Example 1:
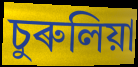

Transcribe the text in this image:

চুৰুলিয়া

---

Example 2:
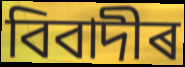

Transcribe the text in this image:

বিবাদীৰ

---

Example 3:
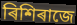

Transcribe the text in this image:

ৰিশিৰাজে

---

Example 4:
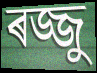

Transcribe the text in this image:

ৰজ্জু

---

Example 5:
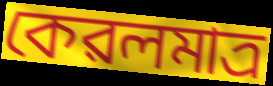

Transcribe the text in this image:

কেৱলমাত্ৰ